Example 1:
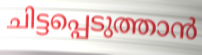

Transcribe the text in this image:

ചിട്ടപ്പെടുത്താൻ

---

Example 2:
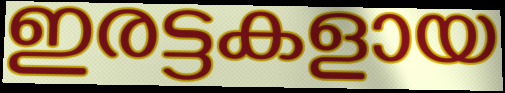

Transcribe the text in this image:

ഇരട്ടകളായ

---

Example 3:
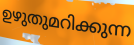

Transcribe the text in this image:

ഉഴുതുമറിക്കുന്ന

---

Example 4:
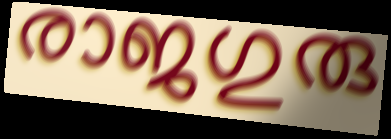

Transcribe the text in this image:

രാജഗുരു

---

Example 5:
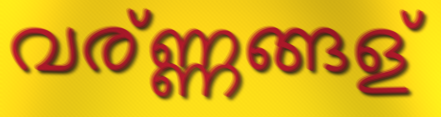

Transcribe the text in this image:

വര്ണ്ണങ്ങള്